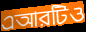
এআরটিও